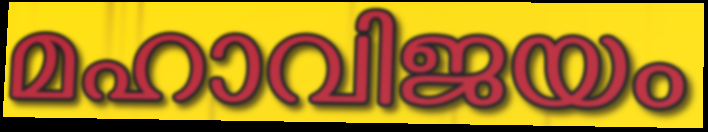
മഹാവിജയം